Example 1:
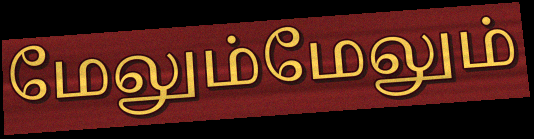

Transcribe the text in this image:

மேலும்மேலும்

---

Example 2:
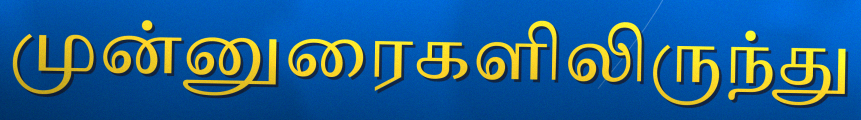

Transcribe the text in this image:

முன்னுரைகளிலிருந்து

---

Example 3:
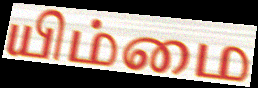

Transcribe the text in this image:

யிம்மை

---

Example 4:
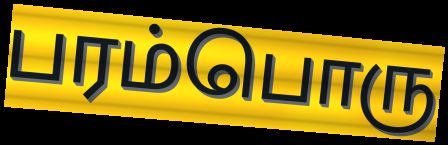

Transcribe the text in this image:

பரம்பொரு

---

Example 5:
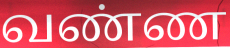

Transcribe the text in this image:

வண்ண